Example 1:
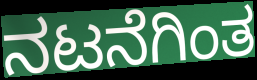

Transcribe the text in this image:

ನಟನೆಗಿಂತ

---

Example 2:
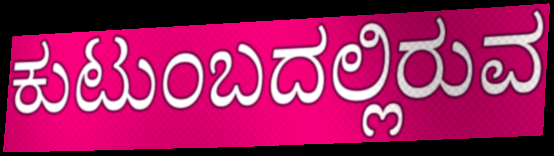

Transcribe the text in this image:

ಕುಟುಂಬದಲ್ಲಿರುವ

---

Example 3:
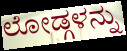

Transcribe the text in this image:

ಲೋಡ್ಗಳನ್ನು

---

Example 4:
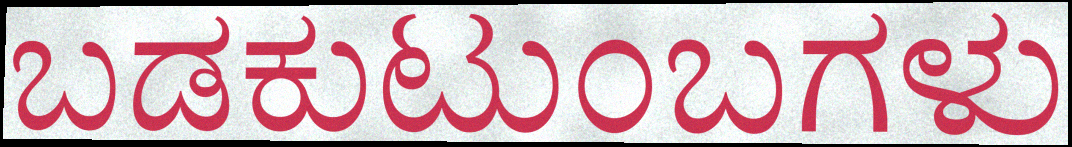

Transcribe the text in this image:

ಬಡಕುಟುಂಬಗಳು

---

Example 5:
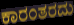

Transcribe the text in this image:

ಕಾರಂತರದು